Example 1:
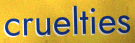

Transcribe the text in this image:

cruelties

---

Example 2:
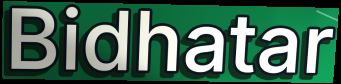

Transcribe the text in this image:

Bidhatar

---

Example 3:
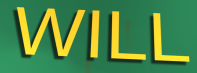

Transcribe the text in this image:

WILL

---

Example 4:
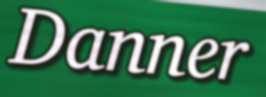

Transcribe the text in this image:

Danner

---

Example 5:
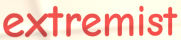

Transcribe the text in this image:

extremist